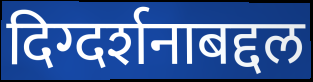
दिग्दर्शनाबद्दल